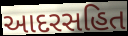
આદરસહિત